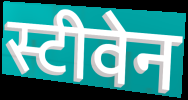
स्टीवेन